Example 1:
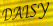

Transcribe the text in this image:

DAISY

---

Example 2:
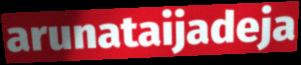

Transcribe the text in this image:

arunataijadeja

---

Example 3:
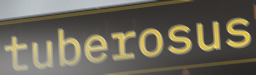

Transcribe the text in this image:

tuberosus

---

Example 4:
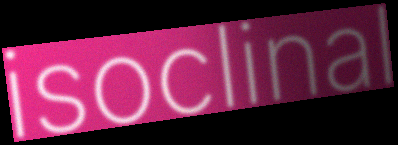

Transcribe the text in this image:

isoclinal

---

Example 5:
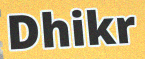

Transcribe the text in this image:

Dhikr